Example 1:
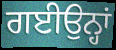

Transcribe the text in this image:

ਗਈਉਨ੍ਹਾਂ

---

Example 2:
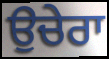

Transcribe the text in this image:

ਉਚੇਰਾ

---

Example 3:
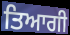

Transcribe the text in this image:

ਤਿਆਗੀ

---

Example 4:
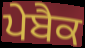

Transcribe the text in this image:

ਪੇਬੈਕ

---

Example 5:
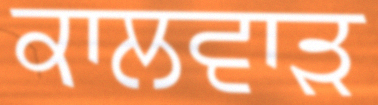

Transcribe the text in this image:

ਕਾਲਵਾੜ